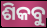
ଶିକବୁ